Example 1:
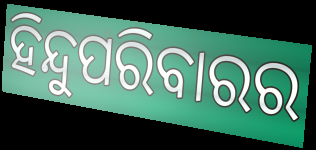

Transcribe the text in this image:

ହିନ୍ଦୁପରିବାରର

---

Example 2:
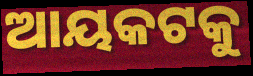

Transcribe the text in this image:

ଆୟକଟକୁ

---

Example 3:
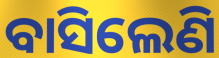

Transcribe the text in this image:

ବାସିଲେଣି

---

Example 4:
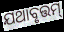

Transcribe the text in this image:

ଯଥାବୃତ୍ତମ୍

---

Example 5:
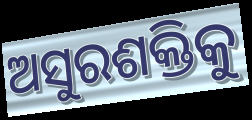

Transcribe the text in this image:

ଅସୁରଶକ୍ତିକୁ